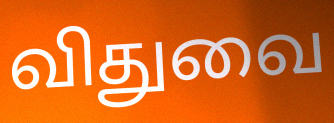
விதுவை